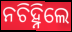
ନଚିହ୍ନିଲେ